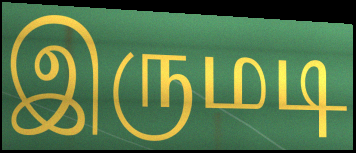
இருமடி